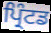
ਪ੍ਰਿੰਟਡ